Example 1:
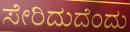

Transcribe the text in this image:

ಸೇರಿದುದೆಂದು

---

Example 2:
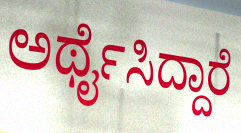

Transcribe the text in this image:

ಅರ್ಥೈಸಿದ್ದಾರೆ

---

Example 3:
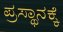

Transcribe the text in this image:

ಪ್ರಸ್ಥಾನಕ್ಕೆ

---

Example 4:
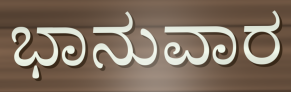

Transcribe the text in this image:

ಭಾನುವಾರ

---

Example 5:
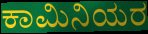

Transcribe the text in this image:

ಕಾಮಿನಿಯರ